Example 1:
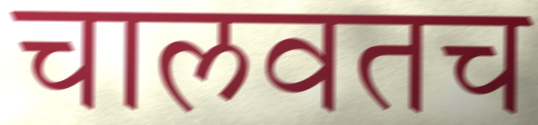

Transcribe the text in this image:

चालवतच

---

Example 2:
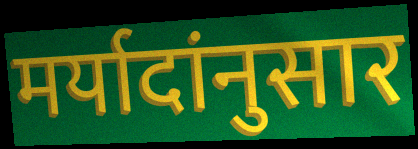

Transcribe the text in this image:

मर्यादांनुसार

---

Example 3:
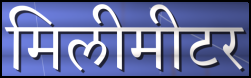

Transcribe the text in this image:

मिलीमीटर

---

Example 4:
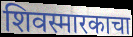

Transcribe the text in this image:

शिवस्मारकाचा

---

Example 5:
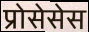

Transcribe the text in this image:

प्रोसेसेस